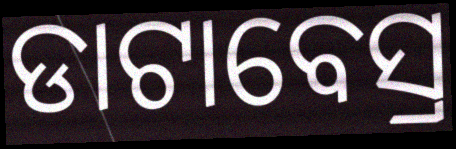
ଡାଟାବେସ୍ର